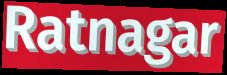
Ratnagar